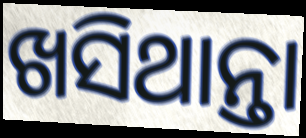
ଖସିଥାନ୍ତା